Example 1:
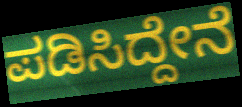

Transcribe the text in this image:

ಪಡಿಸಿದ್ದೇನೆ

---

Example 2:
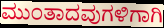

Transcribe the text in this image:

ಮುಂತಾದವುಗಳಿಗಾಗಿ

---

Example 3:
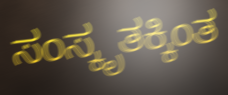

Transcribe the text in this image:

ಸಂಸ್ಕೃತಕ್ಕಿಂತ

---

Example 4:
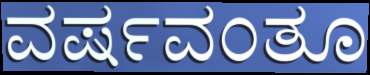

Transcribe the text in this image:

ವರ್ಷವಂತೂ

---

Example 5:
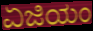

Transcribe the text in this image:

ಏಜಿಯಂ